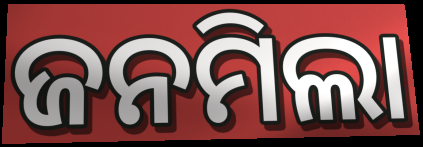
ଜନମିଲା